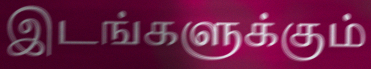
இடங்களுக்கும்